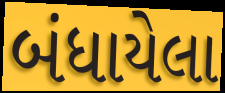
બંધાયેલા